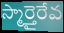
స్మార్తైరేవ